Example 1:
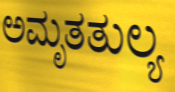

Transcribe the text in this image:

ಅಮೃತತುಲ್ಯ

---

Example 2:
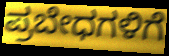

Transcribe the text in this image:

ಪ್ರಬೇಧಗಳಿಗೆ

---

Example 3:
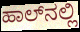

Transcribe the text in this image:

ಹಾಲ್‌ನಲ್ಲಿ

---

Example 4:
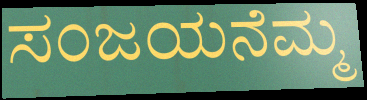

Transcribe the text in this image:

ಸಂಜಯನೆಮ್ಮ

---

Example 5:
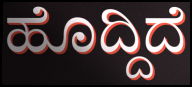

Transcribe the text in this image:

ಹೊದ್ದಿದೆ